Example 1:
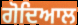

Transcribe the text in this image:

ਗੋਦਿਆਲ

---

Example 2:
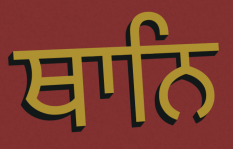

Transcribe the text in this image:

ਥਾਨਿ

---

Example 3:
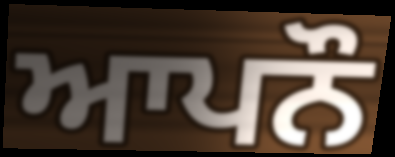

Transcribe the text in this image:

ਆਪਨੌ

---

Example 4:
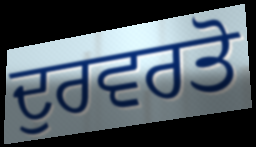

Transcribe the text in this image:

ਦੁਰਵਰਤੋ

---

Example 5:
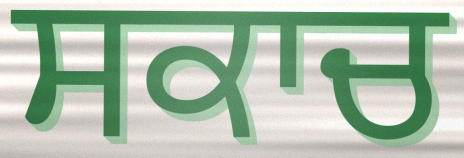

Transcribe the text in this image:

ਸਕਾਚ